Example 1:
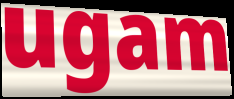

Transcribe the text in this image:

ugam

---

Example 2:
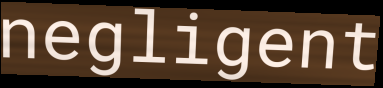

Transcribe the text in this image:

negligent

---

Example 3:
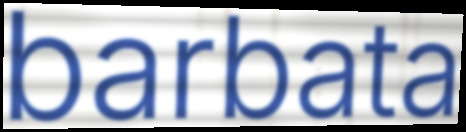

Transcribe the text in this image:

barbata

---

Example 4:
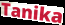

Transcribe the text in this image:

Tanika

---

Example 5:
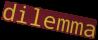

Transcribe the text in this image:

dilemma